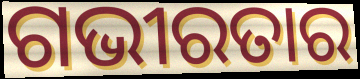
ଗଭୀରତାର